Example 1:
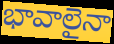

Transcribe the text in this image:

భావాలైనా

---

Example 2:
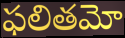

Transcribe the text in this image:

ఫలితమో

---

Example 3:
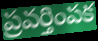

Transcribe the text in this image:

ప్రవర్తింపక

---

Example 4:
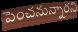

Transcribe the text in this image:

పెంచనున్నారని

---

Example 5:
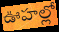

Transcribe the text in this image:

ఊహల్లో